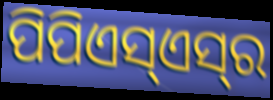
ପିପିଏସ୍ଏସ୍‌ର